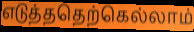
எடுத்ததெற்கெல்லாம்